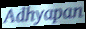
Adhyapan